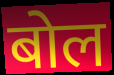
बोल